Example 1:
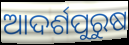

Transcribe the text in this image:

ଆଦର୍ଶପୁରୁଷ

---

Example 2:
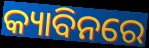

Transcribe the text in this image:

କ୍ୟାବିନରେ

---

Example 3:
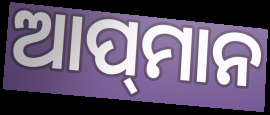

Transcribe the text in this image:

ଆପ୍‌ମାନ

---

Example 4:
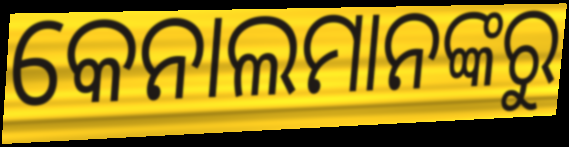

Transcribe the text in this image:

କେନାଲମାନଙ୍କରୁ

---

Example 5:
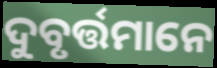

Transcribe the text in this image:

ଦୁବୃର୍ତ୍ତମାନେ